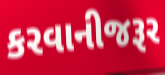
કરવાનીજરૂર